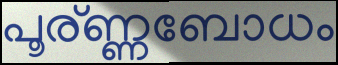
പൂര്ണ്ണബോധം